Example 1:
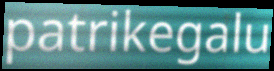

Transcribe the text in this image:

patrikegalu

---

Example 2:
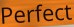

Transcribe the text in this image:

Perfect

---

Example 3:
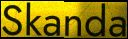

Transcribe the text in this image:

Skanda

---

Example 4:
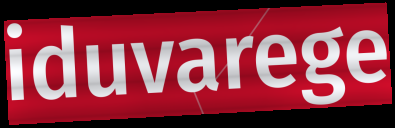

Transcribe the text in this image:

iduvarege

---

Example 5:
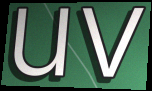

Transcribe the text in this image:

uv